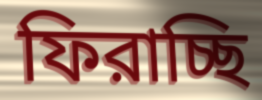
ফিরাচ্ছি